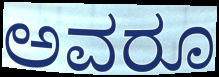
ಅವರೂ